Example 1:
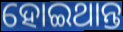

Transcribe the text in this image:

ହୋଇଥାନ୍ତ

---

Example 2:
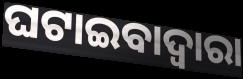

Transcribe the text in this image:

ଘଟାଇବାଦ୍ୱାରା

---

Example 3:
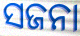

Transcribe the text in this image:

ସଜନା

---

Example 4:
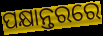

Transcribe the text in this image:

ପକ୍ଷାନ୍ତରରେ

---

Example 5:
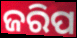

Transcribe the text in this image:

ଜରିପ